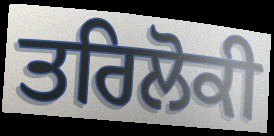
ਤਰਿਲੋਕੀ